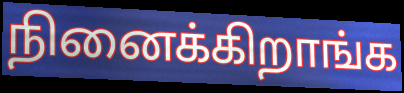
நினைக்கிறாங்க